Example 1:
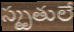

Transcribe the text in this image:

స్మృతులే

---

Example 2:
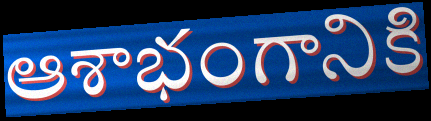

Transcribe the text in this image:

ఆశాభంగానికి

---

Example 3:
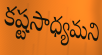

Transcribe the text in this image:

కష్టసాధ్యమని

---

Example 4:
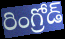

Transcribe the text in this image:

రింగ్రోడ్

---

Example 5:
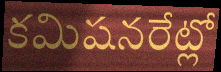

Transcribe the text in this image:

కమిషనరేట్లో